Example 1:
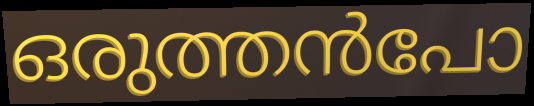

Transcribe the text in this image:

ഒരുത്തൻപോ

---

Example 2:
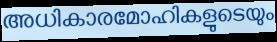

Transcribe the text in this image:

അധികാരമോഹികളുടെയും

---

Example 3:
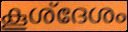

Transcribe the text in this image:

കൂശ്ദേശം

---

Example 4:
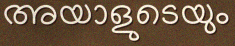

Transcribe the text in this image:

അയാളുടെയും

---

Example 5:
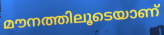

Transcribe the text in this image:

മൗനത്തിലൂടെയാണ്